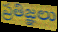
ప్రతిజ్ఞలు